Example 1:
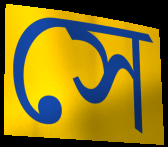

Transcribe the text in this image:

সে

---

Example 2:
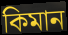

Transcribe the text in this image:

কিমান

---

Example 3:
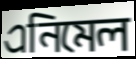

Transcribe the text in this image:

এনিমেল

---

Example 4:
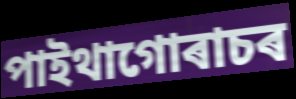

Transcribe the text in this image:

পাইথাগোৰাচৰ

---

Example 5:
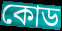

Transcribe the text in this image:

কোড